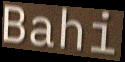
Bahi